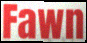
Fawn